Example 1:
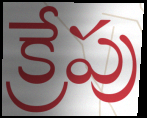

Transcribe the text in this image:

క్రేపు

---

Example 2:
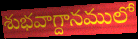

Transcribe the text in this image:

శుభవాగ్దానములో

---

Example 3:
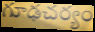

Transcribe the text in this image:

గూఢచర్యం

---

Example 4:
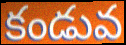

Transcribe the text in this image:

కండువ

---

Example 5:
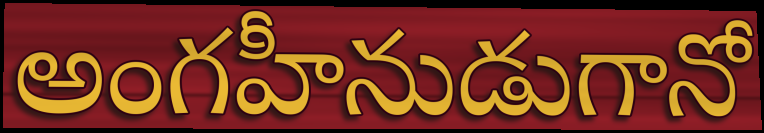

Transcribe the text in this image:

అంగహీనుడుగానో